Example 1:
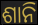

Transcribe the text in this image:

ଶାନି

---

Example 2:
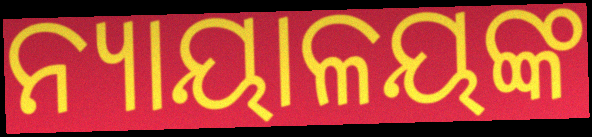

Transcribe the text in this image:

ନ୍ୟାୟାଳୟଙ୍କ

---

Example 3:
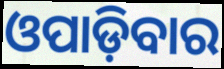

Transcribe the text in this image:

ଓପାଡ଼ିବାର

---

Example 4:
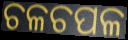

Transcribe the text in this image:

ଚଳଚପଳ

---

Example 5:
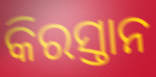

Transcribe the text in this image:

କିରସ୍ତାନ